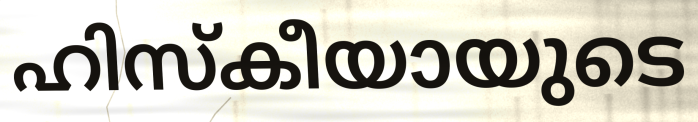
ഹിസ്കീയായുടെ